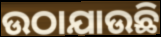
ଉଠାଯାଉଛି